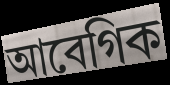
আবেগিক